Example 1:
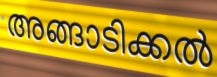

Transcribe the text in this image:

അങ്ങാടിക്കൽ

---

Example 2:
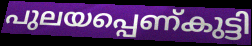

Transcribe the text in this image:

പുലയപ്പെണ്കുട്ടി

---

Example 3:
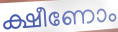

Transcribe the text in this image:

ക്ഷീണോം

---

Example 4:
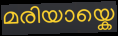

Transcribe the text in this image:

മരിയായ്കെ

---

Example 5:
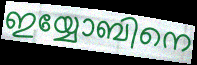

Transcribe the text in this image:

ഇയ്യോബിനെ